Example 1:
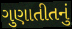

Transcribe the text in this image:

ગુણાતીતનું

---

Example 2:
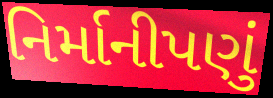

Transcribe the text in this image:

નિર્માનીપણું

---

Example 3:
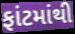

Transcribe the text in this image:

ફાંટમાંથી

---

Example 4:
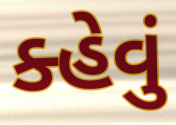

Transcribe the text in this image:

ક્હેવું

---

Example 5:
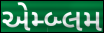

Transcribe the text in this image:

એમ્બ્લમ